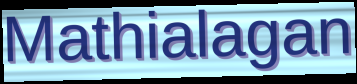
Mathialagan